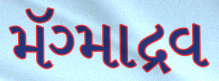
મૅગ્માદ્રવ